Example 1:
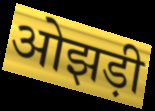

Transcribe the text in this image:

ओझड़ी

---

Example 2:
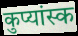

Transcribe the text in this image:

कुप्यांस्क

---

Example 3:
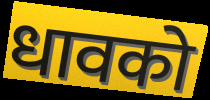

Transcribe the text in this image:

धावको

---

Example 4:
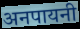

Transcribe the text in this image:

अनपायनी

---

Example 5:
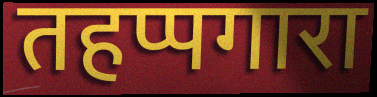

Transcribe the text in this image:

तहप्पगारा